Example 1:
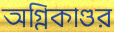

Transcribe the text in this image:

অগ্নিকাণ্ডর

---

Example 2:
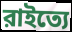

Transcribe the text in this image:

রাইত্যে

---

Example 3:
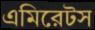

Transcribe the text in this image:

এমিরেটস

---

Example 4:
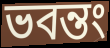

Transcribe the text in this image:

ভবন্তং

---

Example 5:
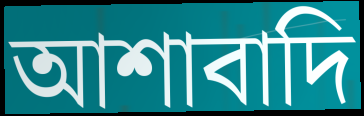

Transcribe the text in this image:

আশাবাদি